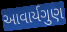
આવાર્યગુણ